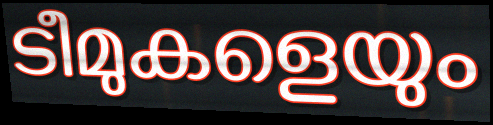
ടീമുകളെയും